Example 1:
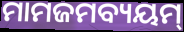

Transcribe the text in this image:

ମାମଜମବ୍ୟୟମ୍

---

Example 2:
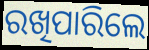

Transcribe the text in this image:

ରଖିପାରିଲେ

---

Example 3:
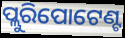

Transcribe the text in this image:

ପ୍ଲୁରିପୋଟେଣ୍ଟ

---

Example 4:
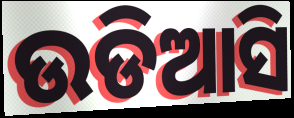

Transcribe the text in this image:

ଉଡିଆସି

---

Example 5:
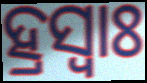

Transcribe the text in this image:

ହ୍ରସ୍ଵାଃ